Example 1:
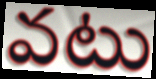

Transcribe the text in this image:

వటు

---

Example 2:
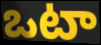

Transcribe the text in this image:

ఒటా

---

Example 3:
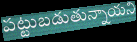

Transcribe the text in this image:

పట్టుబడుతున్నాయని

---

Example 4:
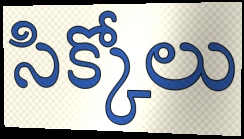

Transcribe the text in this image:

సిక్కోలు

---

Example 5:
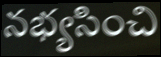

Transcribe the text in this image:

నభ్యసించి